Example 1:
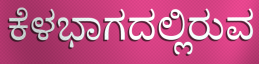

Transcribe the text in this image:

ಕೆಳಭಾಗದಲ್ಲಿರುವ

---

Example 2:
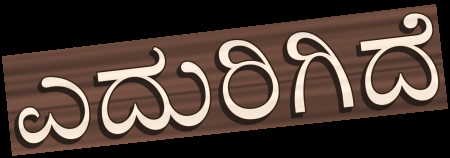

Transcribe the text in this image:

ಎದುರಿಗಿದೆ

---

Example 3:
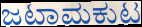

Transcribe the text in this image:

ಜಟಾಮಕುಟ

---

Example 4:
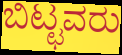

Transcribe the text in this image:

ಬಿಟ್ಟವರು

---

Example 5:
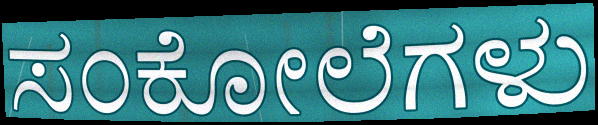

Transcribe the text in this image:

ಸಂಕೋಲೆಗಳು